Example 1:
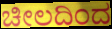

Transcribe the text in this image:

ಚೀಲದಿಂದ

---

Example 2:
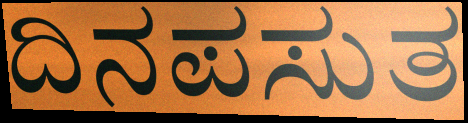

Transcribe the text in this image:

ದಿನಪಸುತ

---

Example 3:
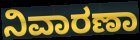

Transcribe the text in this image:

ನಿವಾರಣಾ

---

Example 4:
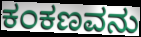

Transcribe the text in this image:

ಕಂಕಣವನು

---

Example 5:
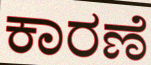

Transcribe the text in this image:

ಕಾರಣೆ